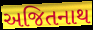
અજિતનાથ